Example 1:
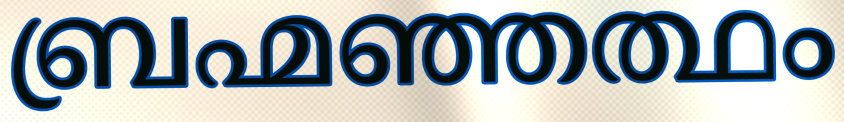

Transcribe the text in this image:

ബ്രഹ്മഞ്ഞത്ഥം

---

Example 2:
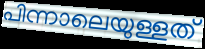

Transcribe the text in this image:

പിന്നാലെയുള്ളത്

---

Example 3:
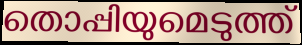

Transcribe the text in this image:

തൊപ്പിയുമെടുത്ത്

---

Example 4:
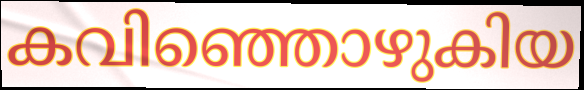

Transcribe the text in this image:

കവിഞ്ഞൊഴുകിയ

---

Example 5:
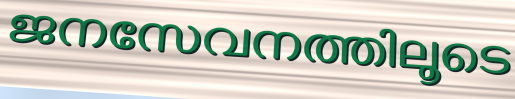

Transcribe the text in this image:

ജനസേവനത്തിലൂടെ